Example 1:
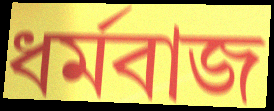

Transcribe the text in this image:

ধর্মবাজ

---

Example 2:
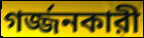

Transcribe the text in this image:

গর্জ্জনকারী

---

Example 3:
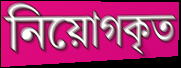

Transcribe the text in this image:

নিয়োগকৃত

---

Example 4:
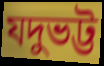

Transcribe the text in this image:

যদুভট্ট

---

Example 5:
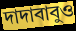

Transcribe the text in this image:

দাদাবাবুও